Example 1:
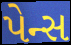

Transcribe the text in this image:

પેન્સ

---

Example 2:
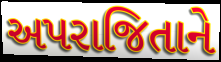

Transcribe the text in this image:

અપરાજિતાને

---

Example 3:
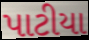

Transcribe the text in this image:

પાટીયા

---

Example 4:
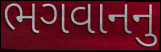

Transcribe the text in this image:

ભગવાનનુ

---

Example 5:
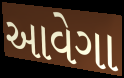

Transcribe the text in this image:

આવેગા